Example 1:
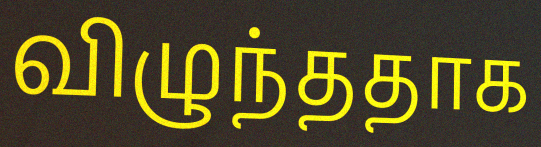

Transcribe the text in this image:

விழுந்ததாக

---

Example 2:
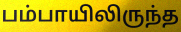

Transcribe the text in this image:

பம்பாயிலிருந்த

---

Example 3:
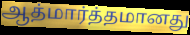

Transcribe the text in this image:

ஆத்மார்த்தமானது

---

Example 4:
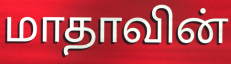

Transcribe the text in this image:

மாதாவின்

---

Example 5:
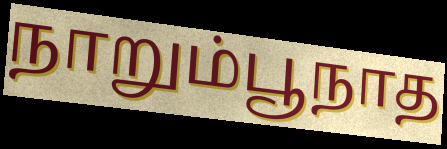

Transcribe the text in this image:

நாறும்பூநாத